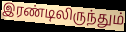
இரண்டிலிருந்தும்